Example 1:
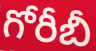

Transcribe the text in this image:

గోరీబీ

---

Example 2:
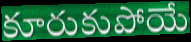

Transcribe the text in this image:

కూరుకుపోయే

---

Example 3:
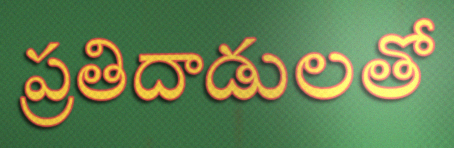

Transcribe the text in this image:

ప్రతిదాడులతో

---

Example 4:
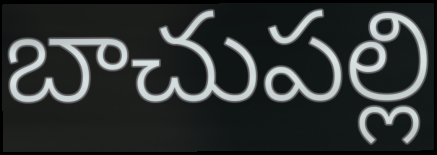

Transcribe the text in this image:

బాచుపల్లి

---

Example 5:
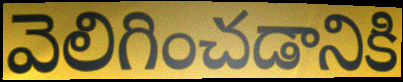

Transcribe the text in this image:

వెలిగించడానికి